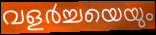
വളർച്ചയെയും